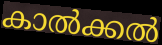
കാൽക്കൽ